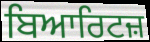
ਬਿਆਰਿਟਜ਼